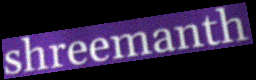
shreemanth